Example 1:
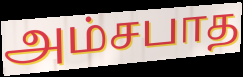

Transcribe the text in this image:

அம்சபாத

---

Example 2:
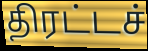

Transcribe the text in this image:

திரட்டச்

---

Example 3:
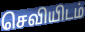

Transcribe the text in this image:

செவியிடம்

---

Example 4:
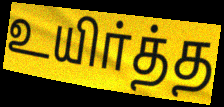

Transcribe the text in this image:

உயிர்த்த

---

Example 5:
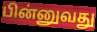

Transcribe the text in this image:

பின்னுவது